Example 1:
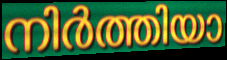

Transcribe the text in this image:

നിർത്തിയാ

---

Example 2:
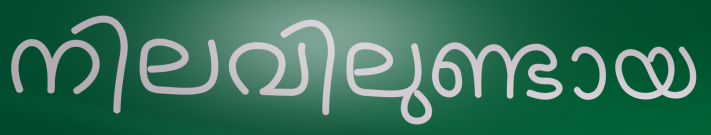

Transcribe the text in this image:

നിലവിലുണ്ടായ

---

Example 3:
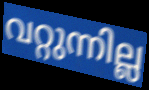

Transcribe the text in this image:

വറ്റുന്നില്ല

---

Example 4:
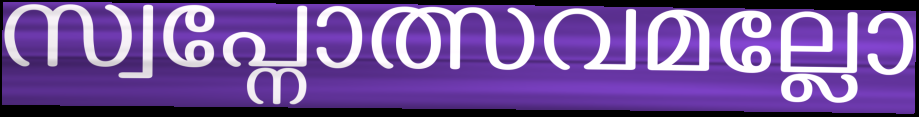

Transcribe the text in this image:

സ്വപ്നോത്സവമല്ലോ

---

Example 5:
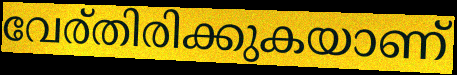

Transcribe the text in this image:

വേര്തിരിക്കുകയാണ്